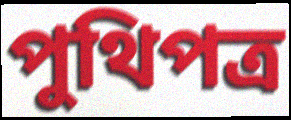
পুথিপত্র